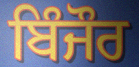
ਬਿੰਜੌਰ